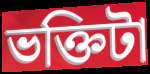
ভক্তিটা